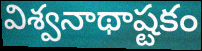
విశ్వనాథాష్టకం